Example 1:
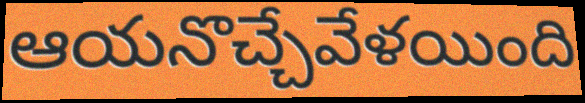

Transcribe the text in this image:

ఆయనొచ్చేవేళయింది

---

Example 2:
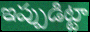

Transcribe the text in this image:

ఇప్పుడిట్టా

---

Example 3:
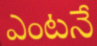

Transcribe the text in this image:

ఎంటనే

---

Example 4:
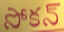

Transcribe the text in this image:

సోకన్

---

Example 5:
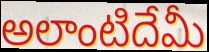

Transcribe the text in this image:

అలాంటిదేమీ